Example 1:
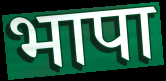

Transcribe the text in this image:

भापा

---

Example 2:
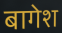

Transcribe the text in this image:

बागेश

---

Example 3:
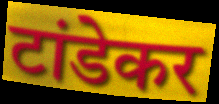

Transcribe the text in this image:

टांडेकर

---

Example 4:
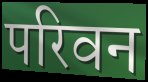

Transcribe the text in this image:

परिवन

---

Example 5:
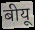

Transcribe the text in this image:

बीयू